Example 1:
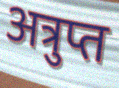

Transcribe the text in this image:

अत्रुप्त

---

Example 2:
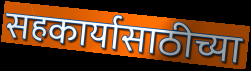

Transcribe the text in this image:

सहकार्यासाठीच्या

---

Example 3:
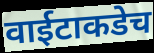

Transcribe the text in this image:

वाईटाकडेच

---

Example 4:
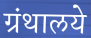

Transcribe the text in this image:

ग्रंथालये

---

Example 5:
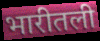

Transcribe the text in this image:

भारीतली